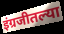
इंग्रजीतल्या